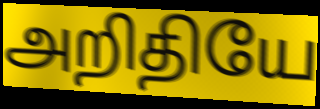
அறிதியே